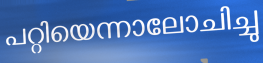
പറ്റിയെന്നാലോചിച്ചു